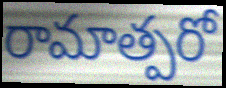
రామాత్పరో